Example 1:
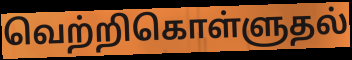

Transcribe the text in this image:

வெற்றிகொள்ளுதல்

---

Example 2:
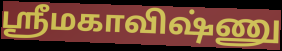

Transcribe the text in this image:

ஸ்ரீமகாவிஷ்ணு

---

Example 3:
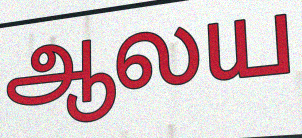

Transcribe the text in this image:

ஆலய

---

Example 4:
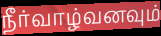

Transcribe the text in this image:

நீர்வாழ்வனவும்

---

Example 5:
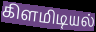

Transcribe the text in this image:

கிளமிடியல்